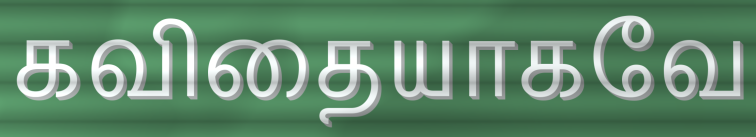
கவிதையாகவே